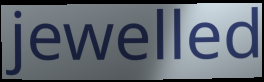
jewelled